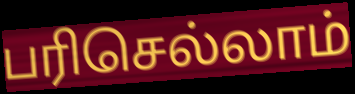
பரிசெல்லாம்